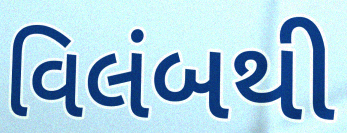
વિલંબથી